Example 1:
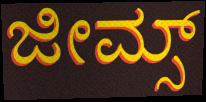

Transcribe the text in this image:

ಜೀಮ್ಸ್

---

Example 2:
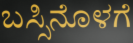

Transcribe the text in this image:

ಬಸ್ಸಿನೊಳಗೆ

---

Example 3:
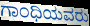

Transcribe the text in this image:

ಗಾಂಧಿಯವರು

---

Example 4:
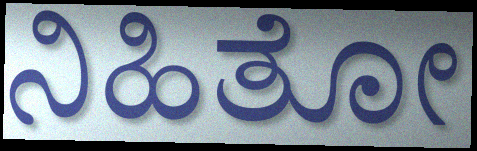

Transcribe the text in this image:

ನಿಹಿತೋ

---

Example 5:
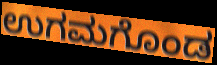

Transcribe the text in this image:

ಉಗಮಗೊಂಡ